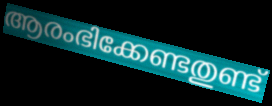
ആരംഭിക്കേണ്ടതുണ്ട്